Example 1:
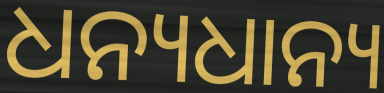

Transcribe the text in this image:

ଧନ୍ୟଧାନ୍ୟ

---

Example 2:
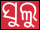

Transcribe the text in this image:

ସୁଲୁ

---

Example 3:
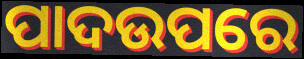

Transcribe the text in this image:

ପାଦଉପରେ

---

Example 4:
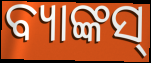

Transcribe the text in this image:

ବ୍ୟାଙ୍କସ୍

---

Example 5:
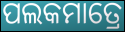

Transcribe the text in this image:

ପଲକମାତ୍ରେ